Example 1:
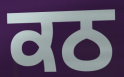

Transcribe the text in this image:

ਕਠ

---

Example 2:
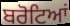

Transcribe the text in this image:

ਬਰੋਟਿਆਂ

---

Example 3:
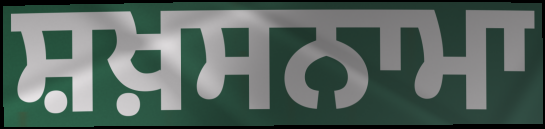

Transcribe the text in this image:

ਸ਼ਖ਼ਸਨਾਮਾ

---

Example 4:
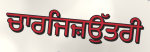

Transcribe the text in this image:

ਚਾਰਜਿਜ਼ਉੱਤਰੀ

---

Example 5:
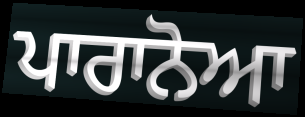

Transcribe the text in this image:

ਪਾਰਾਨੋਆ